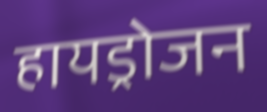
हायड्रोजन